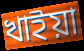
খাইয়া